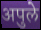
अपुले